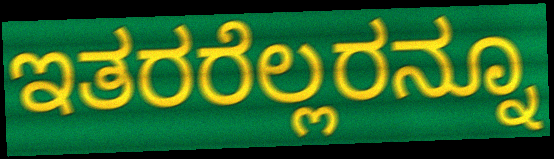
ಇತರರೆಲ್ಲರನ್ನೂ